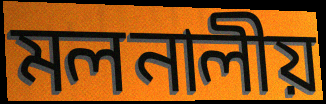
মলনালীয়